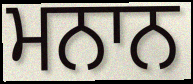
ਮਨਾਨ